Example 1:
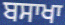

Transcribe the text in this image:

ਬਸਾਖਾ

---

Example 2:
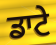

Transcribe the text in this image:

ਡਾਟੇ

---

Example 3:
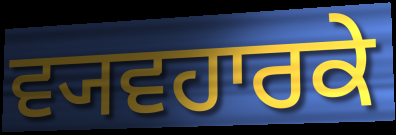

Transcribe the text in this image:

ਵ੍ਯਵਹਾਰਕੇ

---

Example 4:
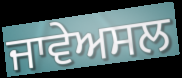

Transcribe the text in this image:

ਜਾਵੇਅਸਲ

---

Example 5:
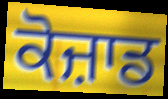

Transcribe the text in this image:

ਕੋਜ਼ਾਡ